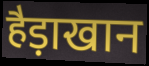
हैड़ाखान